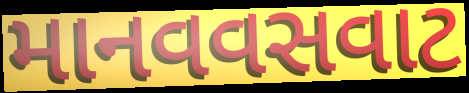
માનવવસવાટ